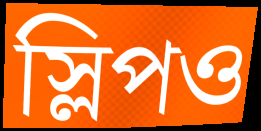
স্লিপও